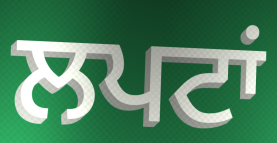
ਲਪਟਾਂ